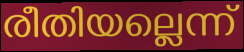
രീതിയല്ലെന്ന്